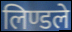
लिण्डले